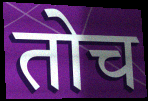
तोच